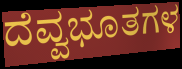
ದೆವ್ವಭೂತಗಳ